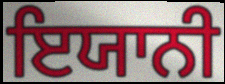
ਇਯਾਨੀ